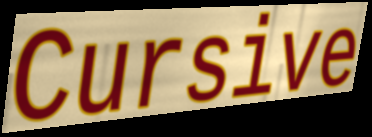
Cursive